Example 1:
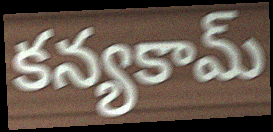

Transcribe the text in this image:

కన్యకామ్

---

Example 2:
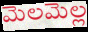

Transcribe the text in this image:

మెలమెల్ల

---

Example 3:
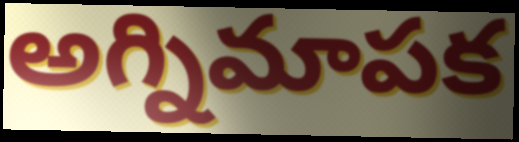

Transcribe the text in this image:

అగ్నిమాపక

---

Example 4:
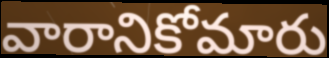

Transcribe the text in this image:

వారానికోమారు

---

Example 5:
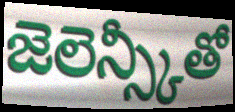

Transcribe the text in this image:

జెలెన్స్కీతో